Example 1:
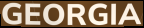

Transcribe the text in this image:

GEORGIA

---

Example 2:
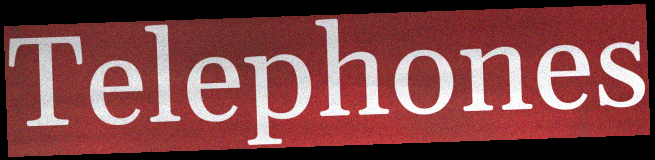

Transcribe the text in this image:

Telephones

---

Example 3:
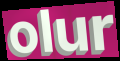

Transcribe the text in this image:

olur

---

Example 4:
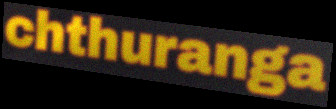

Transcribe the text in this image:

chthuranga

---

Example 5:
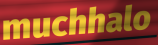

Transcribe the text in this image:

muchhalo